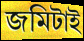
জমিটাই